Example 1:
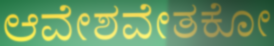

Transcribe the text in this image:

ಆವೇಶವೇತಕೋ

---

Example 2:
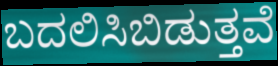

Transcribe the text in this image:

ಬದಲಿಸಿಬಿಡುತ್ತವೆ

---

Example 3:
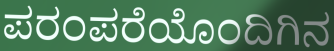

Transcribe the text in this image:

ಪರಂಪರೆಯೊಂದಿಗಿನ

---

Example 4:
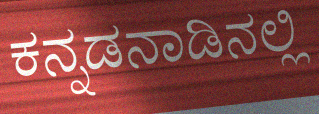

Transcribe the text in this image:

ಕನ್ನಡನಾಡಿನಲ್ಲಿ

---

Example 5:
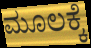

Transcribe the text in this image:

ಮೂಲಕ್ಕೆ